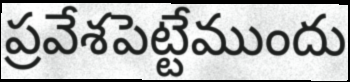
ప్రవేశపెట్టేముందు